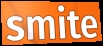
smite